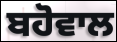
ਬਹੋਵਾਲ